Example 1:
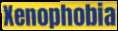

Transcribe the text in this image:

Xenophobia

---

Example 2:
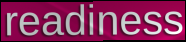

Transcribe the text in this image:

readiness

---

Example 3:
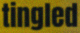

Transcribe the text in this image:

tingled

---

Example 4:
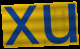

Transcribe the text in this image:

xu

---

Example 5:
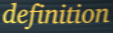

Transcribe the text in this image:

definition